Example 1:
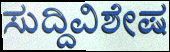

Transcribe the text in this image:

ಸುದ್ದಿವಿಶೇಷ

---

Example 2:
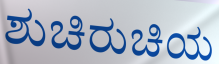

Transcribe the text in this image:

ಶುಚಿರುಚಿಯ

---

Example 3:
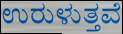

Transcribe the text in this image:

ಉರುಳುತ್ತವೆ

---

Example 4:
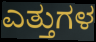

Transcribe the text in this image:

ಎತ್ತುಗಳ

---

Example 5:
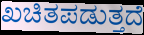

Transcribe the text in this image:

ಖಚಿತಪಡುತ್ತದೆ